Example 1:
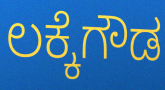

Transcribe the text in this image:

ಲಕ್ಕೆಗೌಡ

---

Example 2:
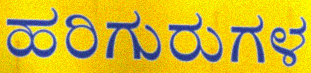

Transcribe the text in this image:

ಹರಿಗುರುಗಳ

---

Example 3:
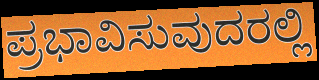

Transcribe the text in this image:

ಪ್ರಭಾವಿಸುವುದರಲ್ಲಿ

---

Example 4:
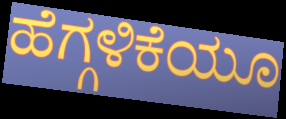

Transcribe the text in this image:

ಹೆಗ್ಗಳಿಕೆಯೂ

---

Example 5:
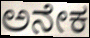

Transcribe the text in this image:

ಅನೇಕ